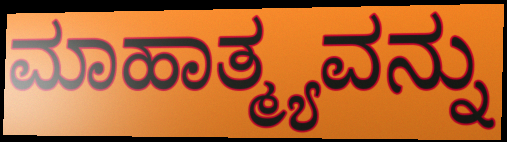
ಮಾಹಾತ್ಮ್ಯವನ್ನು